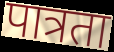
पात्रता